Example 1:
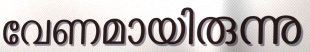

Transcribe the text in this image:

വേണമായിരുന്നു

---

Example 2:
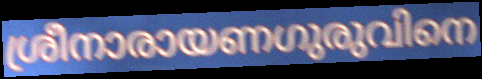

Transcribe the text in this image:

ശ്രീനാരായണഗുരുവിനെ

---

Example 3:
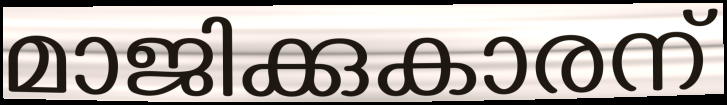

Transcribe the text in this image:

മാജിക്കുകാരന്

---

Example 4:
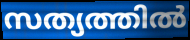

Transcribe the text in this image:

സത്യത്തിൽ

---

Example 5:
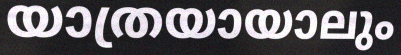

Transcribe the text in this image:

യാത്രയായാലും